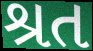
શ્રત